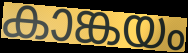
കാങ്കയം